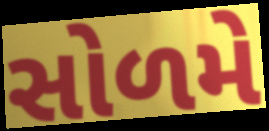
સોળમે